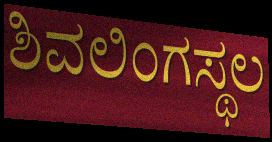
ಶಿವಲಿಂಗಸ್ಥಲ